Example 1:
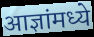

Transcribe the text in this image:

आज्ञांमध्ये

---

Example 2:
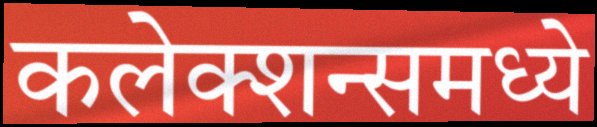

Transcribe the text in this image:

कलेक्शन्समध्ये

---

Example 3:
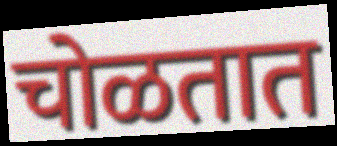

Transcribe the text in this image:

चोळतात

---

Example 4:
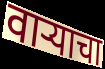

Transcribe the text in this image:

वाऱ्याचा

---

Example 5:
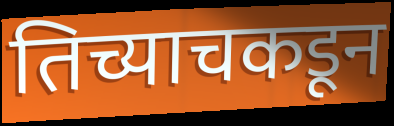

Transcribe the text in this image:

तिच्याचकडून